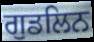
ਗੁਡਲਿਨ